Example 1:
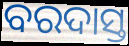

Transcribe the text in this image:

ବରଦାସ୍ତ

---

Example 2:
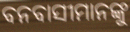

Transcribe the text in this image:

ବନବାସୀମାନଙ୍କୁ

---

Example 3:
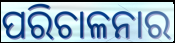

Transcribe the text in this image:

ପରିଚାଳନାର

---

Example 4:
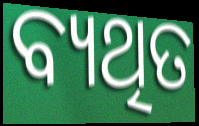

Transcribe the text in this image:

ବ୍ୟଥିତ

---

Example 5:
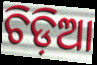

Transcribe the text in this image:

ଚିଡ଼ିଆ